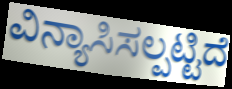
ವಿನ್ಯಾಸಿಸಲ್ಪಟ್ಟಿದೆ